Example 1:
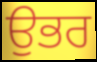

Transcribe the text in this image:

ਉਭਰ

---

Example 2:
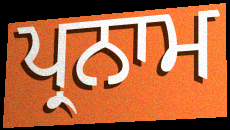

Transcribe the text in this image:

ਪ੍ਰਨਾਮ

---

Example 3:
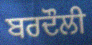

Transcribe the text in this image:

ਬਰਦੌਲੀ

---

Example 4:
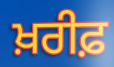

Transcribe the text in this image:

ਖ਼ਰੀਫ਼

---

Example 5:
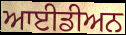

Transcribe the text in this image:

ਆਈਡੀਅਨ